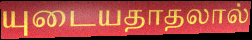
யுடையதாதலால்